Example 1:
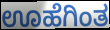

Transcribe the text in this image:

ಊಹೆಗಿಂತ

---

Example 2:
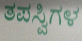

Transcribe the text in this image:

ತಪಸ್ವಿಗಳ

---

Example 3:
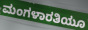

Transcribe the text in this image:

ಮಂಗಳಾರತಿಯೂ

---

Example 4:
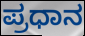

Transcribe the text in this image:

ಪ್ರಧಾನ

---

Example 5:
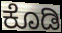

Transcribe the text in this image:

ಕೊಡಿ